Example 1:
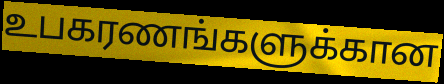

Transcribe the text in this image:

உபகரணங்களுக்கான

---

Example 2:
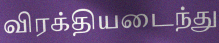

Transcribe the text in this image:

விரக்தியடைந்து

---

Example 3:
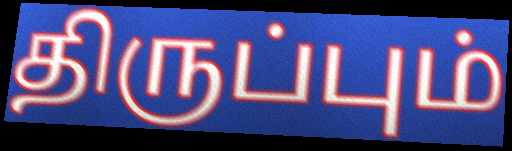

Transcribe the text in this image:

திருப்பும்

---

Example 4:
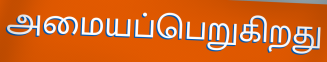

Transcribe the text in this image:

அமையப்பெறுகிறது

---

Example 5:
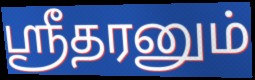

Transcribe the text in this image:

ஸ்ரீதரனும்